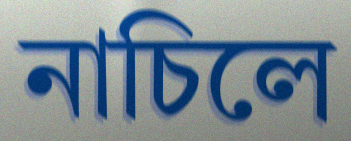
নাচিলে